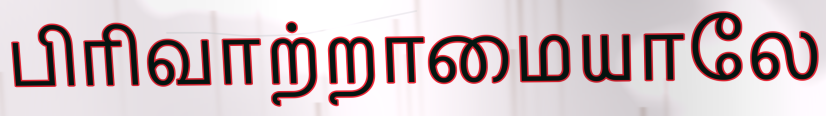
பிரிவாற்றாமையாலே